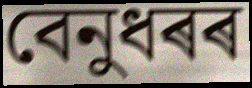
বেনুধৰৰ